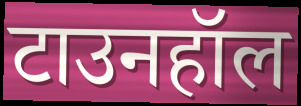
टाउनहॉल